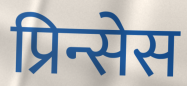
प्रिन्सेस